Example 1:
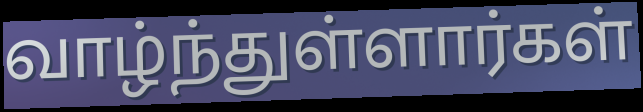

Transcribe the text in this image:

வாழ்ந்துள்ளார்கள்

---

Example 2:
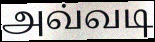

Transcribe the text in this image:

அவ்வடி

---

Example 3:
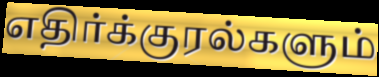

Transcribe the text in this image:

எதிர்க்குரல்களும்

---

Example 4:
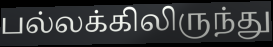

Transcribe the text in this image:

பல்லக்கிலிருந்து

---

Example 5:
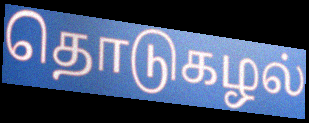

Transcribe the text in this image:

தொடுகழல்